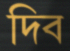
দিব